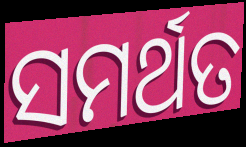
ସମର୍ଥତ